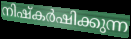
നിഷ്കർഷിക്കുന്ന